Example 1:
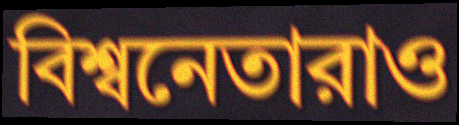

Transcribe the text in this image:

বিশ্বনেতারাও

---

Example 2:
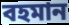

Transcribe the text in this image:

বহমান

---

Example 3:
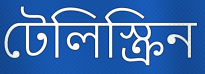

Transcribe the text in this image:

টেলিস্ক্রিন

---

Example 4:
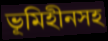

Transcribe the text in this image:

ভূমিহীনসহ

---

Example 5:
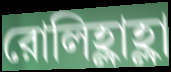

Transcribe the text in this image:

রোলিহ্লাহ্লা